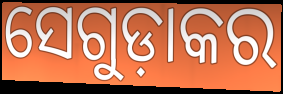
ସେଗୁଡ଼ାକର